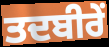
ਤਦਬੀਰੇਂ